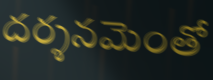
దర్శనమెంతో